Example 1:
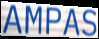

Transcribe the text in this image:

AMPAS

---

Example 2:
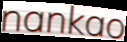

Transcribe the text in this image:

nankao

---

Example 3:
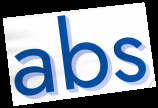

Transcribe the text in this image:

abs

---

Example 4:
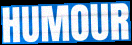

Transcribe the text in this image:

HUMOUR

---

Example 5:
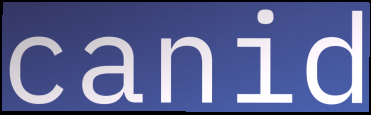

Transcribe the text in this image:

canid